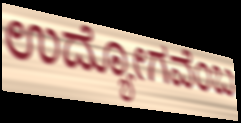
ಉದ್ಯೋಗವೆಂಬ